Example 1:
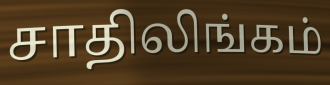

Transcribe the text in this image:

சாதிலிங்கம்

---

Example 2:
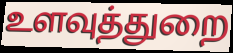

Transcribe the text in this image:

உளவுத்துறை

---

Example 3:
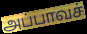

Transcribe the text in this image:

அப்பாவச்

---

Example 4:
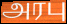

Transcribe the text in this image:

அரபு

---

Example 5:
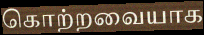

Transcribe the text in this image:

கொற்றவையாக